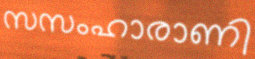
സസംഹാരാണി